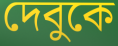
দেবুকে